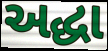
અદ્ધા